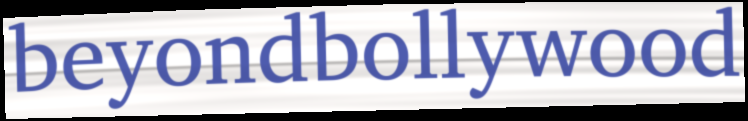
beyondbollywood